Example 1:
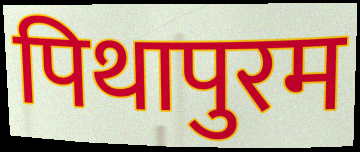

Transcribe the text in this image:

पिथापुरम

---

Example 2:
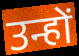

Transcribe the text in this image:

उन्हों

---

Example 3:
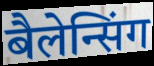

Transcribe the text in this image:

बैलेन्सिंग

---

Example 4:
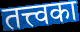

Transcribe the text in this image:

तत्त्वका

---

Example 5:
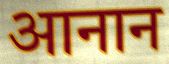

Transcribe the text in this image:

आनान